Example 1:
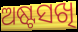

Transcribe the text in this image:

ଅଷ୍ଟସଖି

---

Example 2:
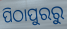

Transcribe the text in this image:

ପିଠାପୁରରୁ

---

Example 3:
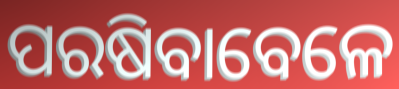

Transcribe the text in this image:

ପରଷିବାବେଳେ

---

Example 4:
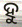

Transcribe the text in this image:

ହୁ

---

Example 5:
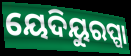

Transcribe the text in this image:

ୟେଦିୟୁରପ୍ପା